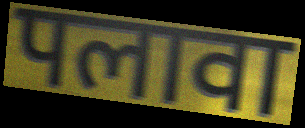
पलावा